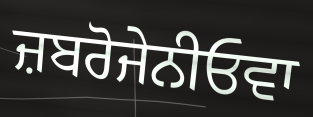
ਜ਼ਬਰੋਜੇਨੀਓਵਾ